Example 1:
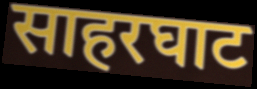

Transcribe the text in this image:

साहरघाट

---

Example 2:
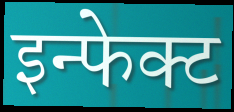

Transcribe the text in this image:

इन्फेक्ट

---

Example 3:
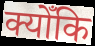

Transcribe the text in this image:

क्योँकि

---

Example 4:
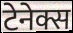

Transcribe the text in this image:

टेनेक्स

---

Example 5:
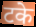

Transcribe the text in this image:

टके